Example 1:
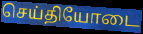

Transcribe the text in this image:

செய்தியோடை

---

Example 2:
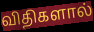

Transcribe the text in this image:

விதிகளால்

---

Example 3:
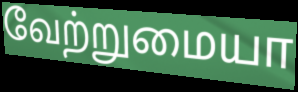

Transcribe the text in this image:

வேற்றுமையா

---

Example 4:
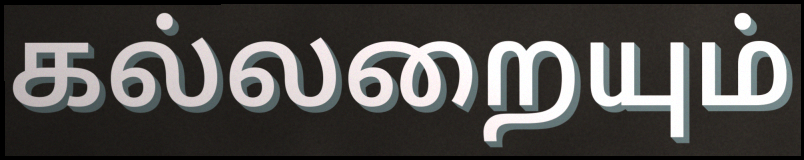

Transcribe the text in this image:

கல்லறையும்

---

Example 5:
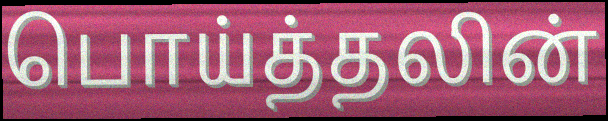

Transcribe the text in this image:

பொய்த்தலின்